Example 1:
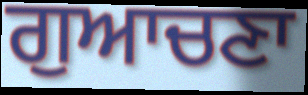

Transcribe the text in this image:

ਗੁਆਚਣਾ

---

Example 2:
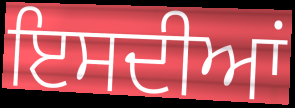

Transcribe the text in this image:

ਇਸਦੀਆਂ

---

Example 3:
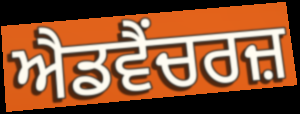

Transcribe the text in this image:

ਐਡਵੈਂਚਰਜ਼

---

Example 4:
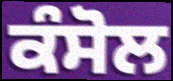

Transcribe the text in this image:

ਕੰਸੋਲ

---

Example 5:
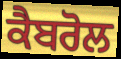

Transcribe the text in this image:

ਕੈਬਰੋਲ